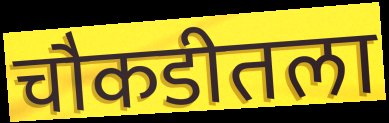
चौकडीतला